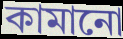
কামানো